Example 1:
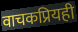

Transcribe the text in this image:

वाचकप्रियही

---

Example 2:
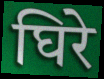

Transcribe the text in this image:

घिरे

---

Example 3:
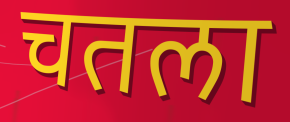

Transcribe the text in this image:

चतला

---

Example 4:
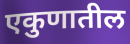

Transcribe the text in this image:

एकुणातील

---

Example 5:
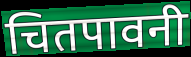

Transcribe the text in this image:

चितपावनी